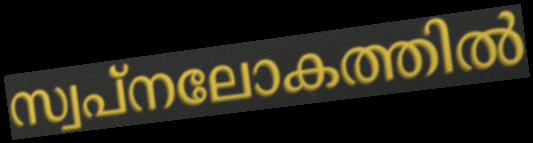
സ്വപ്നലോകത്തിൽ